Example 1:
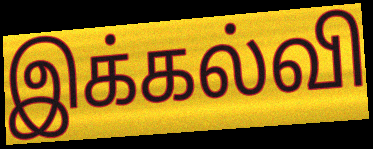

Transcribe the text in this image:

இக்கல்வி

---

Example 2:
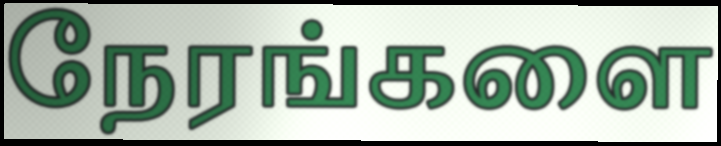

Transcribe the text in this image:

நேரங்களை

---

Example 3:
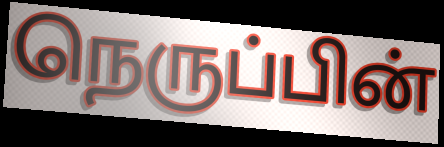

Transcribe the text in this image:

நெருப்பின்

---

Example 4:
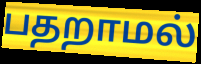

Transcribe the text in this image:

பதறாமல்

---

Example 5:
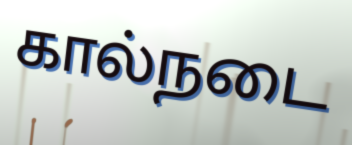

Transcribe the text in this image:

கால்நடை